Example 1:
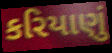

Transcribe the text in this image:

કરિયાણું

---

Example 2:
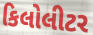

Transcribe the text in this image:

કિલોલીટર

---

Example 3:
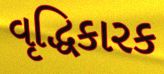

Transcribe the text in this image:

વૃદ્ધિકારક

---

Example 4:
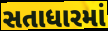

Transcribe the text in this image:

સતાધારમાં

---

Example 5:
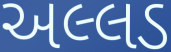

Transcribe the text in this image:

અલ્લડ